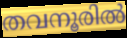
തവനൂരിൽ